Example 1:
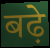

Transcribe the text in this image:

बढ़े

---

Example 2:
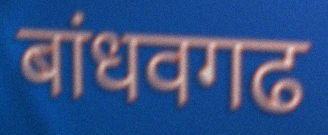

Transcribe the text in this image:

बांधवगढ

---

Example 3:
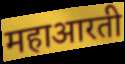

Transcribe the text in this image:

महाआरती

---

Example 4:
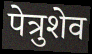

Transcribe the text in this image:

पेत्रुशेव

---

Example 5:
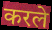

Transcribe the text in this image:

करले